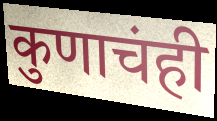
कुणाचंही